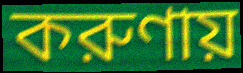
করুণায়